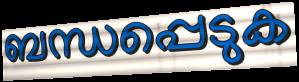
ബന്ധപ്പെടുക